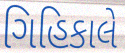
ગિહિકાલે